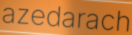
azedarach